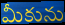
మీకును